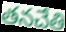
తనచేతి